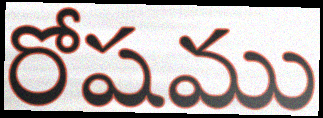
రోషము